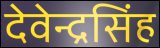
देवेन्द्रसिंह